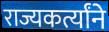
राज्यकर्त्यांने